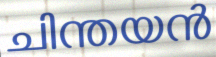
ചിന്തയൻ